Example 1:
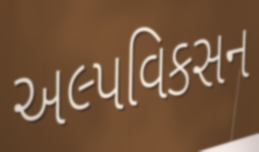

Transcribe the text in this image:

અલ્પવિકસન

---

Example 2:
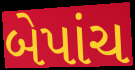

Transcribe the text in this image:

બેપાંચ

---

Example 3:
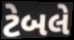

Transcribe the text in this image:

ટેબલે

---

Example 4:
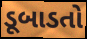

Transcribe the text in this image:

ડૂબાડતો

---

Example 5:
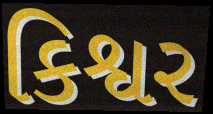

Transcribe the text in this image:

કિશ્વર